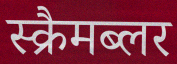
स्क्रैमब्लर